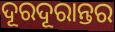
ଦୂରଦୂରାନ୍ତର